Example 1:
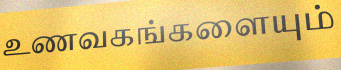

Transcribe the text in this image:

உணவகங்களையும்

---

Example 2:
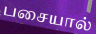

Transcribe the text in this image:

பசையால்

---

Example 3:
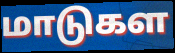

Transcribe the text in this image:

மாடுகள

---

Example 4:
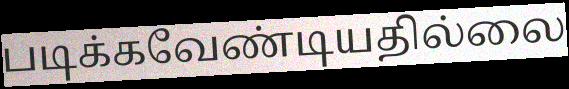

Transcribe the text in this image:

படிக்கவேண்டியதில்லை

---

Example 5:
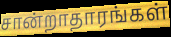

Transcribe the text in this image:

சான்றாதாரங்கள்